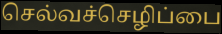
செல்வச்செழிப்பை